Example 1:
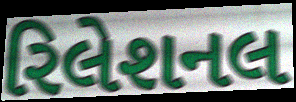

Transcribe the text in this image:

રિલેશનલ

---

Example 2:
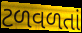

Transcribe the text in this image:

ટળવળતાં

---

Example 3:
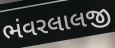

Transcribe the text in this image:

ભંવરલાલજી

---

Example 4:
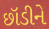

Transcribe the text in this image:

છૉડીને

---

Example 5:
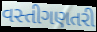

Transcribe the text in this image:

વસ્તીગણતરી